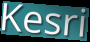
Kesri